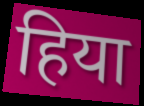
हिया